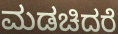
ಮಡಚಿದರೆ